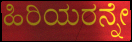
ಹಿರಿಯರನ್ನೇ